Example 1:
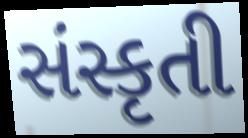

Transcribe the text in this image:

સંસ્કૃતી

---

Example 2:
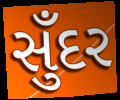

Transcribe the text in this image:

સુઁદર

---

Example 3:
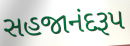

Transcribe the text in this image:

સહજાનંદરૂપ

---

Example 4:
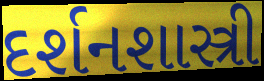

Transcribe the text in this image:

દર્શનશાસ્ત્રી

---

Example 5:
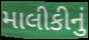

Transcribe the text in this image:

માલીકીનું